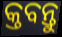
କ୍ତବନ୍ତୁ